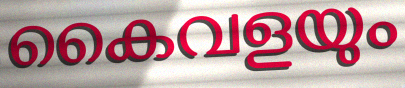
കൈവളയും